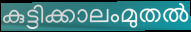
കുട്ടിക്കാലംമുതൽ